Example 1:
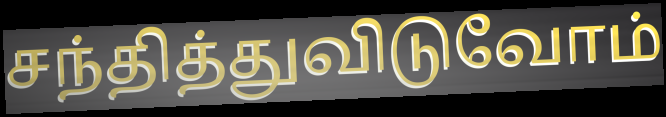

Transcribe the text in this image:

சந்தித்துவிடுவோம்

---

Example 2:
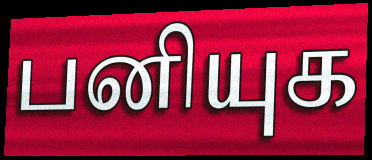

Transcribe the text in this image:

பனியுக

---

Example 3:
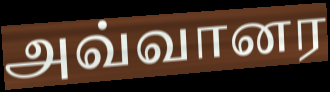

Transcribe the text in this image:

அவ்வானர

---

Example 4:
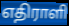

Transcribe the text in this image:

எதிராளி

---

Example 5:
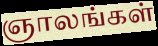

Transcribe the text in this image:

ஞாலங்கள்